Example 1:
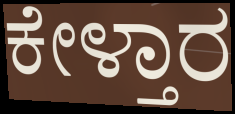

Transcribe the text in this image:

ಕೇಳ್ತಾರ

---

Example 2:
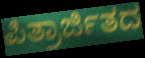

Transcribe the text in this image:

ಪಿತ್ರಾರ್ಜಿತದ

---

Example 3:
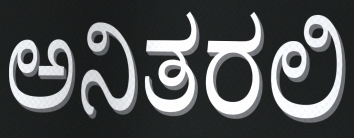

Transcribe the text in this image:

ಅನಿತರಲಿ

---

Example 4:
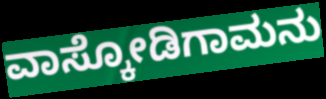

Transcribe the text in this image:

ವಾಸ್ಕೋಡಿಗಾಮನು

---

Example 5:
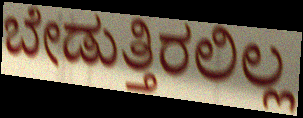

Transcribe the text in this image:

ಬೇಡುತ್ತಿರಲಿಲ್ಲ